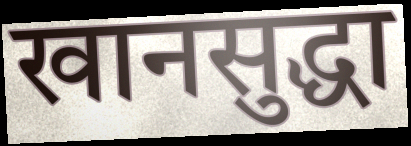
खानसुद्धा